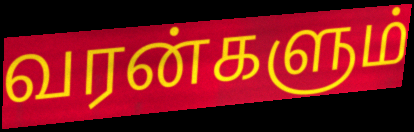
வரன்களும்